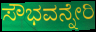
ಸೌಭವನ್ನೇರಿ